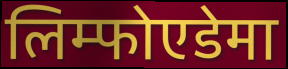
लिम्फोएडेमा